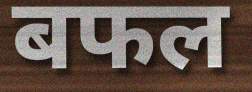
बफल